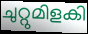
ചുറ്റുമിളകി